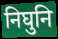
निघुनि